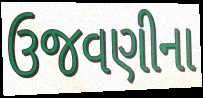
ઉજવણીના